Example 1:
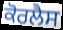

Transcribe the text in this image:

ਕੋਰਲੈਸ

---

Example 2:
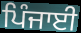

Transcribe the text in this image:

ਪਿੰਜਾਈ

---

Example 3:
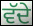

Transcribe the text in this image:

ਵੱਦੇ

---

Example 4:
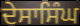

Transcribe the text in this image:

ਦੇਸਾਸਿੰਘ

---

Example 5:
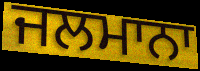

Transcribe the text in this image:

ਜਲਮਾਨਾ